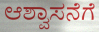
ಆಶ್ವಾಸನೆಗೆ